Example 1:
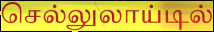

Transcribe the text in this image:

செல்லுலாய்டில்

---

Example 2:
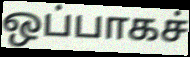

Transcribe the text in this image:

ஒப்பாகச்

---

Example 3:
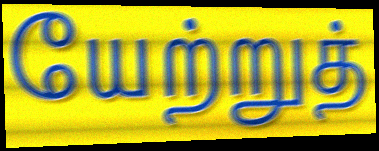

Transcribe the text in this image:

யேற்றுத்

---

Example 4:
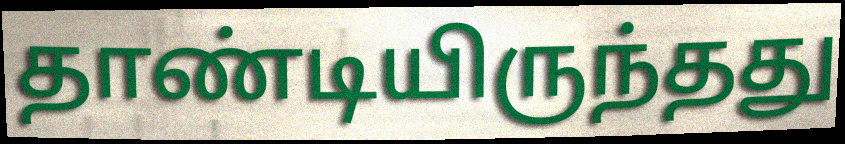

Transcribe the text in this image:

தாண்டியிருந்தது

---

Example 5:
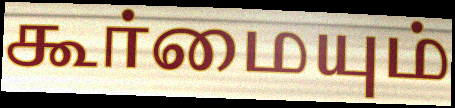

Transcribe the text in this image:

கூர்மையும்